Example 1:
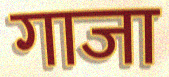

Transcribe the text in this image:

गाजा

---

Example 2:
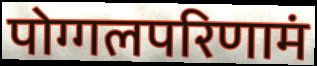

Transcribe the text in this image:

पोग्गलपरिणामं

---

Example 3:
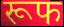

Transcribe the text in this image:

रूफ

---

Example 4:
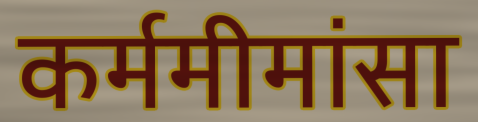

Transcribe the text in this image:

कर्ममीमांसा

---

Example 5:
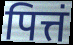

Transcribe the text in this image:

पित्तं